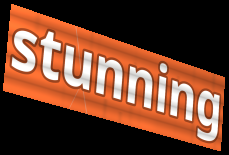
stunning